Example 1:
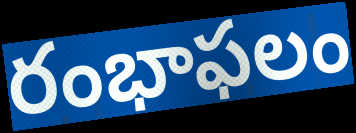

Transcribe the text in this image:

రంభాఫలం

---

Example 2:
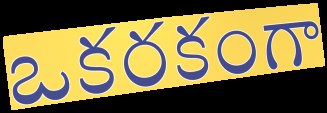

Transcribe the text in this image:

ఒకరకంగా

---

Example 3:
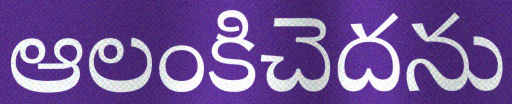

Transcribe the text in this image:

ఆలంకిచెదను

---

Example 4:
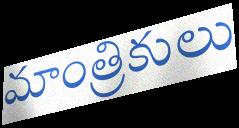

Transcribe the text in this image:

మాంత్రికులు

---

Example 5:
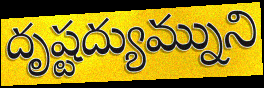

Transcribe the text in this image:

దృష్టద్యుమ్నుని